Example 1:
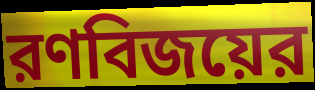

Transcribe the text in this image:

রণবিজয়ের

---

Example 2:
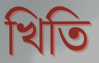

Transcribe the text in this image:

খিতি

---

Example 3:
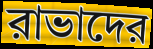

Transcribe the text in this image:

রাভাদের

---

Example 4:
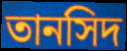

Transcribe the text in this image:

তানসিদ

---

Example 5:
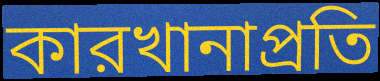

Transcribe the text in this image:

কারখানাপ্রতি